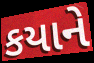
કયાને